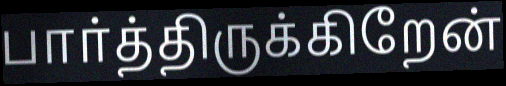
பார்த்திருக்கிறேன்